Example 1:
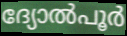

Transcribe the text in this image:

ദ്യോൽപൂർ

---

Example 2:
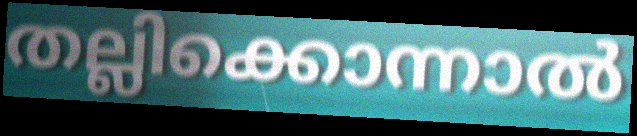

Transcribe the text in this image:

തല്ലിക്കൊന്നാൽ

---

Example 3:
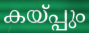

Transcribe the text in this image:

കയ്പ്പും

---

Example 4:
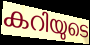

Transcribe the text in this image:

കറിയുടെ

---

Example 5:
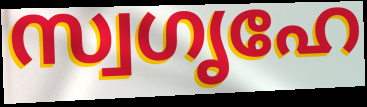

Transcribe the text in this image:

സ്വഗൃഹേ